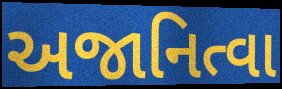
અજાનિત્વા